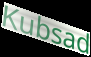
Kubsad